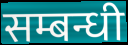
सम्बन्धी